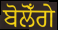
ਬੋਲੋਁਗੇ